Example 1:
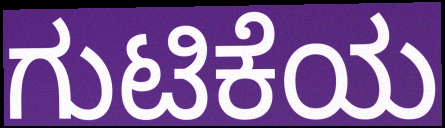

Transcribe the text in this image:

ಗುಟಿಕೆಯ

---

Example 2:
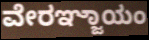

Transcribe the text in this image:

ವೇರಞ್ಜಾಯಂ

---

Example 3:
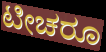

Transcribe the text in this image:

ಟೀಚರೂ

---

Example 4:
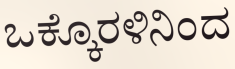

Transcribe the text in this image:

ಒಕ್ಕೊರಳಿನಿಂದ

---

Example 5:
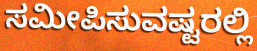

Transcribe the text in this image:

ಸಮೀಪಿಸುವಷ್ಟರಲ್ಲಿ